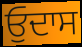
ਓੁਦਾਸ